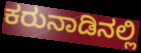
ಕರುನಾಡಿನಲ್ಲಿ